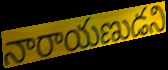
నారాయణుడని